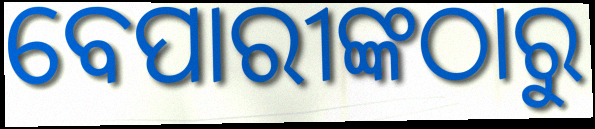
ବେପାରୀଙ୍କଠାରୁ